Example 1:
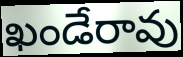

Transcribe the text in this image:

ఖండేరావు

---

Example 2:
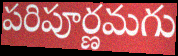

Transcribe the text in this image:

పరిపూర్ణమగు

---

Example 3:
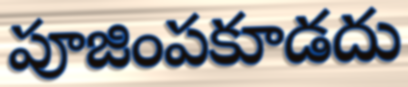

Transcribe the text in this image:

పూజింపకూడదు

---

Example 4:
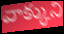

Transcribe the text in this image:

వాక్కుని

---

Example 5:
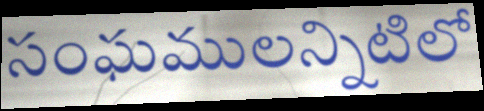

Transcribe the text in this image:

సంఘములన్నిటిలో